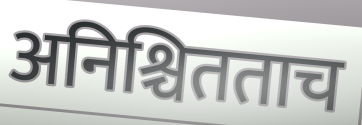
अनिश्चितताच